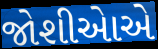
જોશીએાએ